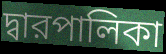
দ্বারপালিকা